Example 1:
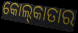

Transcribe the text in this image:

କୋଲ୍‍କାତାର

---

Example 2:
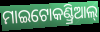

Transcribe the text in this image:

ମାଇଟୋକଣ୍ଡ୍ରିଆଲ୍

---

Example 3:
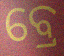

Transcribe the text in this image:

ବ୍ରେ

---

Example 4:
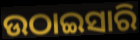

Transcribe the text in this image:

ଉଠାଇସାରି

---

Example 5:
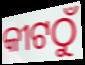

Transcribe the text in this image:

କୀଟଠୁଁ